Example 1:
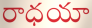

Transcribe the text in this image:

రాధయా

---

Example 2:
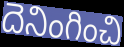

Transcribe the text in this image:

దెనింగించి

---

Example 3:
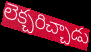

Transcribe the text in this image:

లెక్చరిచ్చాడు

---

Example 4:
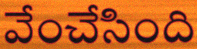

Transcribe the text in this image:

వేంచేసింది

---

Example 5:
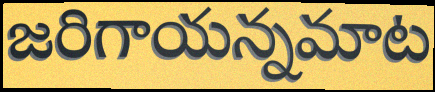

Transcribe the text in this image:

జరిగాయన్నమాట